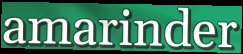
amarinder